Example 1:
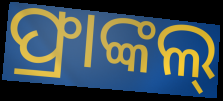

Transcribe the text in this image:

ଫ୍ରାଙ୍କଲ୍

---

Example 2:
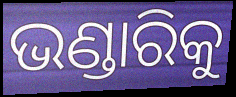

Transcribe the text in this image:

ଭଣ୍ଡାରିକୁ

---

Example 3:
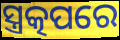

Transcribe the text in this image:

ସ୍ତ୍ରତ୍କପରେ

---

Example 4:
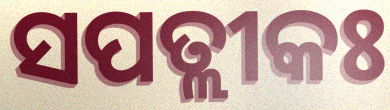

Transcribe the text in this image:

ସପତ୍ଲୀକଃ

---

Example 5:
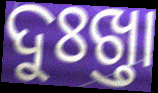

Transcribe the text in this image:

ଦୁଃଖ୍ତା